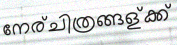
നേര്ചിത്രങ്ങള്ക്ക്